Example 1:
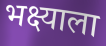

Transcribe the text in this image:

भक्ष्याला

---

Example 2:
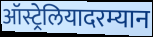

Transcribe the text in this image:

ऑस्ट्रेलियादरम्यान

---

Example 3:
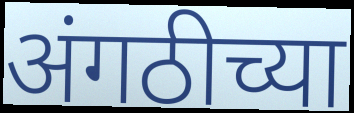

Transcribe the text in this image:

अंगठीच्या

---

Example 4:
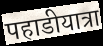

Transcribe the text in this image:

पहाडीयात्रा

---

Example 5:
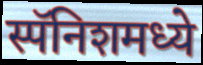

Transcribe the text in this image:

स्पॅनिशमध्ये